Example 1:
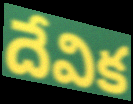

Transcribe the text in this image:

దేవిక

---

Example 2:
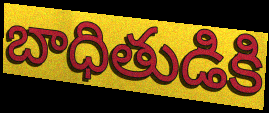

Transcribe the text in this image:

బాధితుడికి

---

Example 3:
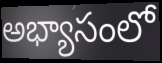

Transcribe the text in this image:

అభ్యాసంలో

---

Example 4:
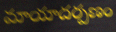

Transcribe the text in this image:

మాయాదర్పణం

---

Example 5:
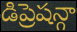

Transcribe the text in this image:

డిప్రెషన్గా